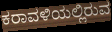
ಕರಾವಳಿಯಲ್ಲಿರುವ